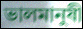
ভালমানুষী